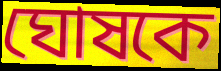
ঘোষকে